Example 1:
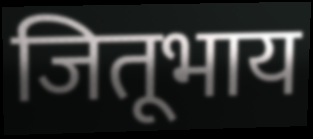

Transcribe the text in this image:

जितूभाय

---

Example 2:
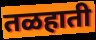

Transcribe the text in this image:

तळहाती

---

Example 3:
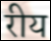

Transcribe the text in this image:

रीय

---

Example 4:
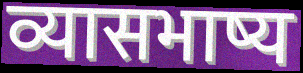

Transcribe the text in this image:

व्यासभाष्य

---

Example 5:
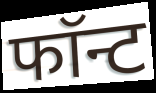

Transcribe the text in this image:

फॉन्ट